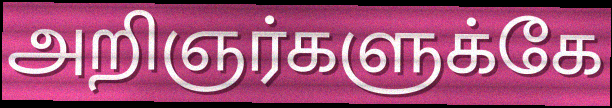
அறிஞர்களுக்கே